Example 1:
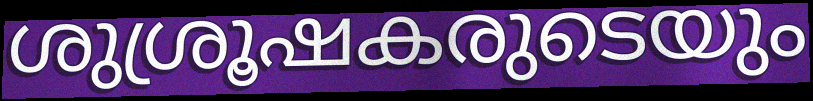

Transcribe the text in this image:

ശുശ്രൂഷകരുടെയും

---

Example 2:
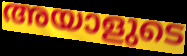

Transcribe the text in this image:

അയാളുടെ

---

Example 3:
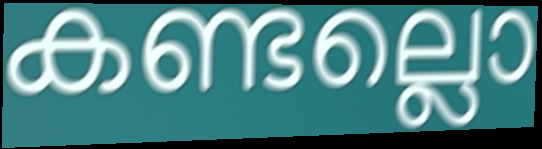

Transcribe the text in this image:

കണ്ടല്ലൊ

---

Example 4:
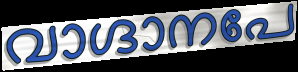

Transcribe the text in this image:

വാഗ്ദാനപേ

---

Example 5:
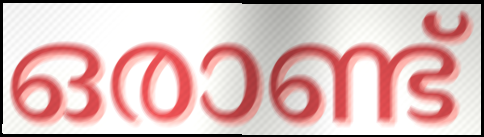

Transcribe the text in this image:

ഒരാണ്ട്